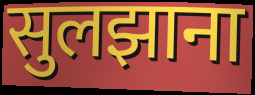
सुलझाना